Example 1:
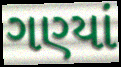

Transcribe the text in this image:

ગણ્યાં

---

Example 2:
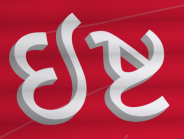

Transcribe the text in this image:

ઇષ્ટ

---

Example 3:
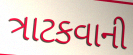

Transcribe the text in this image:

ત્રાટકવાની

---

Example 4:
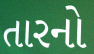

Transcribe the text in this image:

તારનો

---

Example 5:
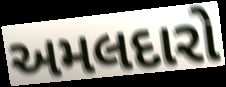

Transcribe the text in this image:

અમલદારો